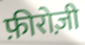
फ़ीरोज़ी